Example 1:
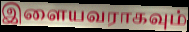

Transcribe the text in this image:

இளையவராகவும்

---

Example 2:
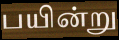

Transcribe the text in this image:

பயின்று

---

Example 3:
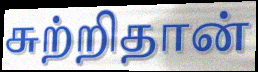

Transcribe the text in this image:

சுற்றிதான்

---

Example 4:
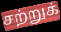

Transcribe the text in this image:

சற்றுக்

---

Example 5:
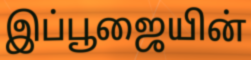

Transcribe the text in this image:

இப்பூஜையின்